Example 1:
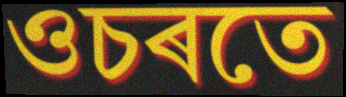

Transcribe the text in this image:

ওচৰতে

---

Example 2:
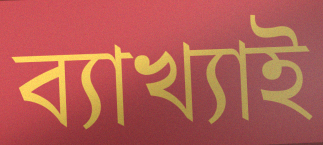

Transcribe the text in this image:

ব্যাখ্যাই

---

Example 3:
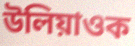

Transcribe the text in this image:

উলিয়াওক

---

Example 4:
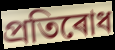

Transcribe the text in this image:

প্ৰতিৰোধ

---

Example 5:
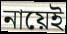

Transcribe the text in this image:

নায়েই